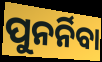
ପୁନର୍ନିବା